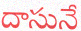
దాసునే